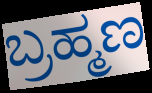
ಬ್ರಹ್ಮಣ